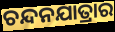
ଚନ୍ଦନଯାତ୍ରାର